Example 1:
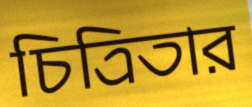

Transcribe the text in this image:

চিত্রিতার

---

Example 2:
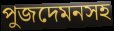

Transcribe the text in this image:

পুজদেমনসহ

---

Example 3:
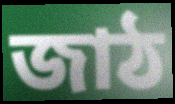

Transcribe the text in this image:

জাঠ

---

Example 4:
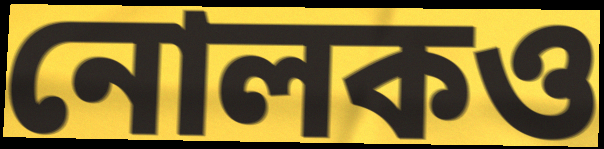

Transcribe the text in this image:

নোলকও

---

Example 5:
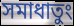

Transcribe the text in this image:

সমাধাতুং